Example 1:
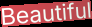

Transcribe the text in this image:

Beautiful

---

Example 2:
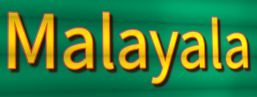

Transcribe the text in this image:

Malayala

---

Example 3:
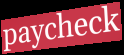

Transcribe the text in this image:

paycheck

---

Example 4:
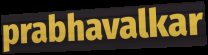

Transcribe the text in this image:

prabhavalkar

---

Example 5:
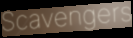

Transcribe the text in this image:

Scavengers